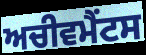
ਅਚੀਵਮੈਂਟਸ